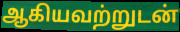
ஆகியவற்றுடன்